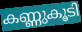
കണ്ണുകൂടി